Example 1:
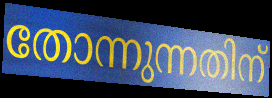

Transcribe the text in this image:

തോന്നുന്നതിന്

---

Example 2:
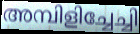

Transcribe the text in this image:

അമ്പിളിച്ചേച്ചി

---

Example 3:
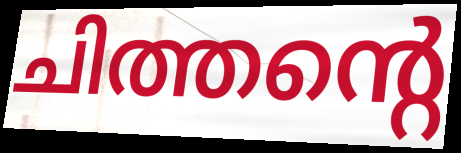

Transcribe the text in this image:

ചിത്തന്റെ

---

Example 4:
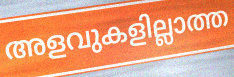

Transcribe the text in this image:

അളവുകളില്ലാത്ത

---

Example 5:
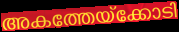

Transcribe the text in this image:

അകത്തേയ്‌ക്കോടി